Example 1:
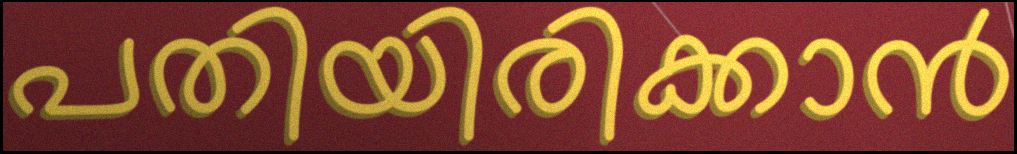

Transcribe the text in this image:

പതിയിരിക്കാൻ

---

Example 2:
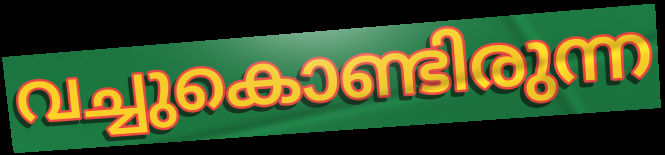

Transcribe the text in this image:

വച്ചുകൊണ്ടിരുന്ന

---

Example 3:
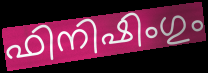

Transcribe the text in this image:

ഫിനിഷിംഗും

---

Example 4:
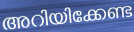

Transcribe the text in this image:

അറിയിക്കേണ്ട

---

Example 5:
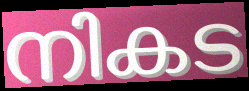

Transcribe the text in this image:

നികട